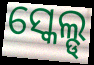
ସ୍କେଲ୍ଡ୍